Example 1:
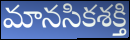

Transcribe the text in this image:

మానసికశక్తి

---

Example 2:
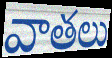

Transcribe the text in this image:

వాతలు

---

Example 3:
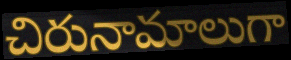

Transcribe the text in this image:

చిరునామాలుగా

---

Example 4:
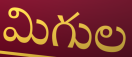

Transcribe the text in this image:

మిగుల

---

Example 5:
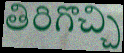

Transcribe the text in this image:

తిరిగొచ్చి